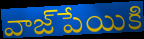
వాజ్‌పేయికి